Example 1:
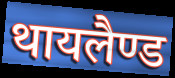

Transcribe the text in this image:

थायलैण्ड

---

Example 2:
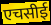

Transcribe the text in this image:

एचसीई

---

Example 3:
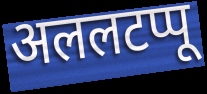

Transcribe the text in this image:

अललटप्पू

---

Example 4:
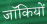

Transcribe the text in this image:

जॉकियों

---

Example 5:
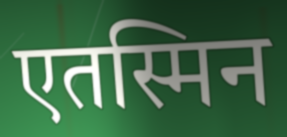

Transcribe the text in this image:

एतस्मिन